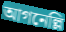
আগনেল্লি